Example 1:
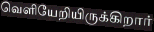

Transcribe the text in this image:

வெளியேறியிருக்கிறார்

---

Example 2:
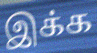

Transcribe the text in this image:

இக்க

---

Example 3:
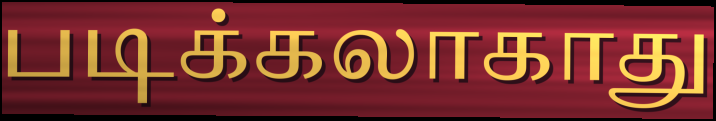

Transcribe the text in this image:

படிக்கலாகாது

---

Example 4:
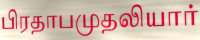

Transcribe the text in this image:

பிரதாபமுதலியார்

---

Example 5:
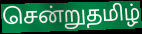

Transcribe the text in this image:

சென்றுதமிழ்